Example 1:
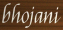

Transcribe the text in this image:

bhojani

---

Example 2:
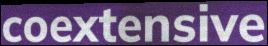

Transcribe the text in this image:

coextensive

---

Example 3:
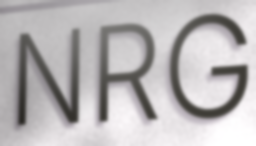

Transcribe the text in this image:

NRG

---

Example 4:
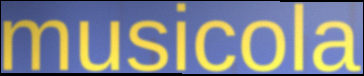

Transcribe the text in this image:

musicola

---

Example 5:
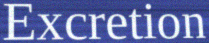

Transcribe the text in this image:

Excretion